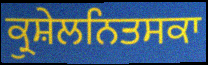
ਕ੍ਰੁਸ਼ੇਲਨਿਤਸਕਾ